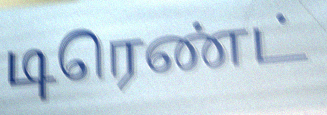
டிரெண்ட்